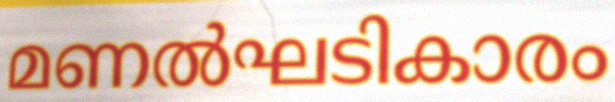
മണൽഘടികാരം